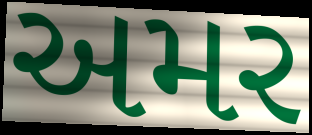
અમર